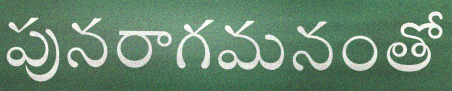
పునరాగమనంతో